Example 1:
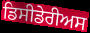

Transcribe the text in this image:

ਡਿਸੀਡੇਰੀਅਸ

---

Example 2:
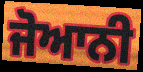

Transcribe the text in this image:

ਜੋਆਨੀ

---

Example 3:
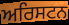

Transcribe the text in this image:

ਅਰਿਸਟਨ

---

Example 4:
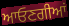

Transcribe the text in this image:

ਆਓਣਗੀਆਂ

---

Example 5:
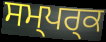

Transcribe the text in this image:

ਸਮ੍ਪਰ੍ਕ